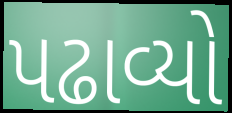
પઢાવ્યો